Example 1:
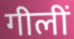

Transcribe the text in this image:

गीलीं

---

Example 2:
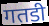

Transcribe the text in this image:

गतडी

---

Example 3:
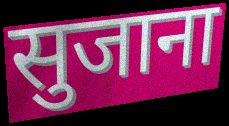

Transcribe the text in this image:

सुजाना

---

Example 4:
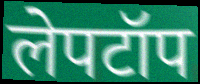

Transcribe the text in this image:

लेपटॉप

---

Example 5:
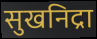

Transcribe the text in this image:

सुखनिद्रा